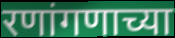
रणांगणाच्या